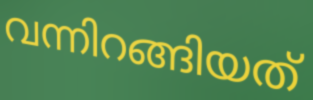
വന്നിറങ്ങിയത്